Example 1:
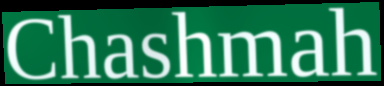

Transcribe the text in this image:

Chashmah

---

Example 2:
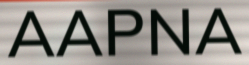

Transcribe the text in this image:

AAPNA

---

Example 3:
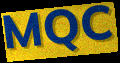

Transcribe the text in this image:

MQC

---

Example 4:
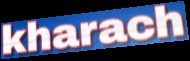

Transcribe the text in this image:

kharach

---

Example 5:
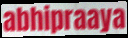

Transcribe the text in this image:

abhipraaya